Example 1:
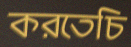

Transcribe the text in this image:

করতেচি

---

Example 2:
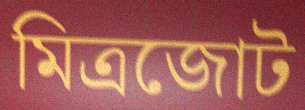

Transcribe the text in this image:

মিত্রজোট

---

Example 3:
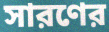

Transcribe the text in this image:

সারণের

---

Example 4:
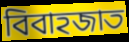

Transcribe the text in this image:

বিবাহজাত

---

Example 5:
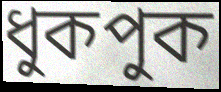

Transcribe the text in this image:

ধুকপুক